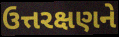
ઉત્તરક્ષણને